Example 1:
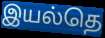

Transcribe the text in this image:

இயல்தெ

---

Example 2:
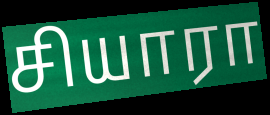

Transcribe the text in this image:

சியாரா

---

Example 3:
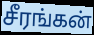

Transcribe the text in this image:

சீரங்கன்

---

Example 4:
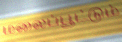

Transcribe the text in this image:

மலைப்பூட்டும்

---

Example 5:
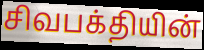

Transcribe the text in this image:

சிவபக்தியின்